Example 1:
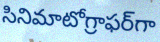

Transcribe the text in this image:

సినిమాటోగ్రాఫర్‌గా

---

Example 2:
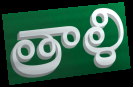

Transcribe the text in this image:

తాళి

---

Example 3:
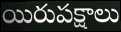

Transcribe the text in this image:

యిరుపక్షాలు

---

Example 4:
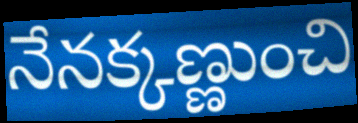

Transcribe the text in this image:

నేనక్కణ్ణుంచి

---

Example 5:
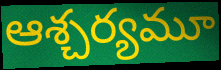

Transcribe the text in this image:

ఆశ్చర్యమూ